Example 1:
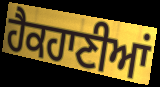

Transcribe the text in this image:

ਹੈਕਹਾਣੀਆਂ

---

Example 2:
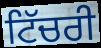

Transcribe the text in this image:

ਟਿੱਚਰੀ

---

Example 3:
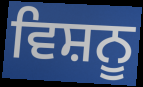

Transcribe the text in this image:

ਵਿਸ਼ਨੂ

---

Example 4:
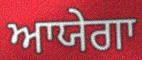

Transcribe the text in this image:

ਆਯੇਗਾ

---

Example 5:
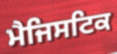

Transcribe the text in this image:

ਮੈਜਿਸਟਿਕ